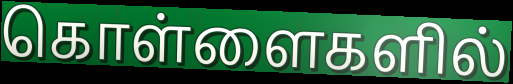
கொள்ளைகளில்